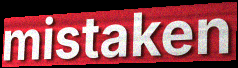
mistaken